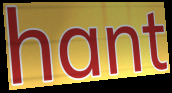
hant